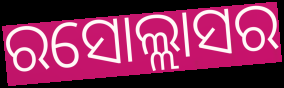
ରସୋଲ୍ଲାସର